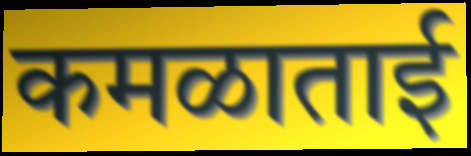
कमळाताई